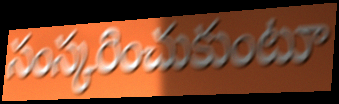
సంస్కరించుకుంటూ